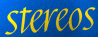
stereos